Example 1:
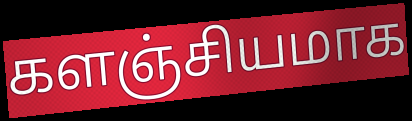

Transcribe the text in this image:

களஞ்சியமாக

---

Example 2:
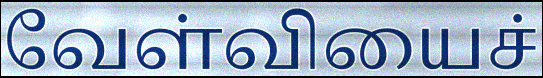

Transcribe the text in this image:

வேள்வியைச்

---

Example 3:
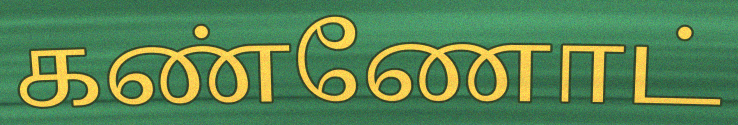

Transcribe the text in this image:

கண்ணோட்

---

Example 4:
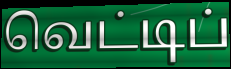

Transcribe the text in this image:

வெட்டிப்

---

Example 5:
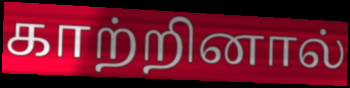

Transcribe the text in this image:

காற்றினால்